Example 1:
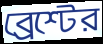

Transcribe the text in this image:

ব্রেশ্টের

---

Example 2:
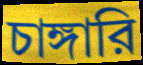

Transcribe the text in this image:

চাঙ্গারি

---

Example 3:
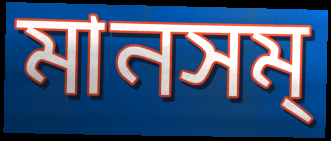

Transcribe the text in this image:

মানসম্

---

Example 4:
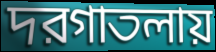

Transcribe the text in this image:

দরগাতলায়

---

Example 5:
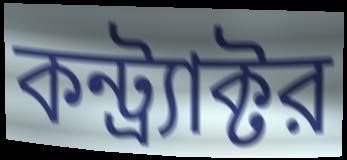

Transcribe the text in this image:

কন্ট্র্যাক্টর